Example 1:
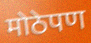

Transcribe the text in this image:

मोठेपण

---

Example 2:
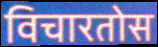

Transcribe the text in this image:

विचारतोस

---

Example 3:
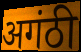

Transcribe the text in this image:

अगंठी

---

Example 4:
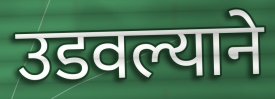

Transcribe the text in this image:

उडवल्याने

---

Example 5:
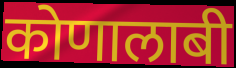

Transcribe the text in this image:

कोणालाबी